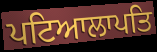
ਪਟਿਆਲਾਪਤਿ